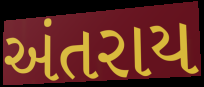
અંતરાય